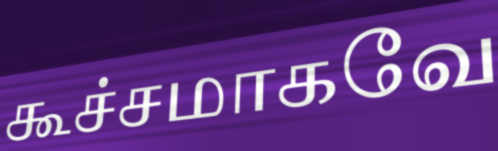
கூச்சமாகவே